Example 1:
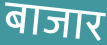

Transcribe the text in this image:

बाजार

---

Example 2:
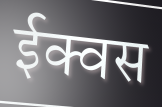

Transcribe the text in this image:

ईक्‍वस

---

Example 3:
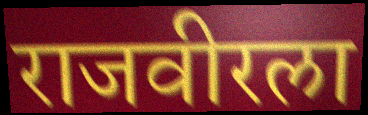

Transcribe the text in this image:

राजवीरला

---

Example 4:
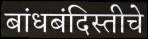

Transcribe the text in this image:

बांधबंदिस्तीचे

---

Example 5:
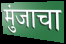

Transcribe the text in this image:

मुंजाचा